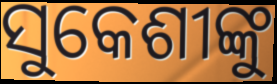
ସୁକେଶୀଙ୍କୁ